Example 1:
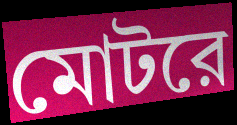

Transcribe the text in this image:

মোটরে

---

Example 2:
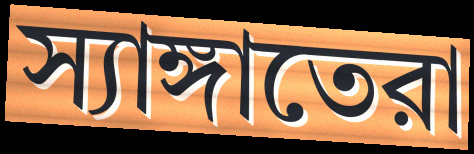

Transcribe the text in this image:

স্যাঙ্গাতেরা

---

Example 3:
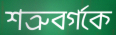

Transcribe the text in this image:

শত্রুবর্গকে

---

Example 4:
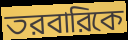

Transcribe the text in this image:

তরবারিকে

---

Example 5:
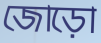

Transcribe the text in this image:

জোড়ো